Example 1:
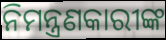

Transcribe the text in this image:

ନିମନ୍ତ୍ରଣକାରୀଙ୍କ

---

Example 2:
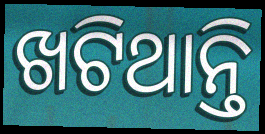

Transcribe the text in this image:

ଖଟିଥାନ୍ତି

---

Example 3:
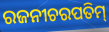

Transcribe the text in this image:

ରଜନୀଚରପତିମ୍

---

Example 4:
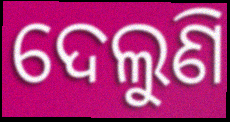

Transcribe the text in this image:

ଦେଲୁଣି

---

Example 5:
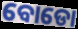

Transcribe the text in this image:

ବୋଡୋ